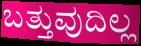
ಬತ್ತುವುದಿಲ್ಲ